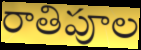
రాతిపూల